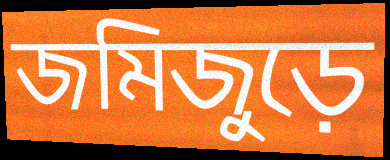
জমিজুড়ে